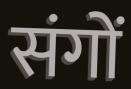
संगों